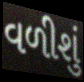
વળીશું